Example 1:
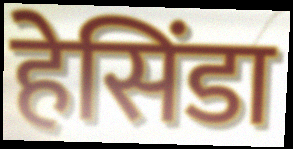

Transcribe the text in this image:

हेसिंडा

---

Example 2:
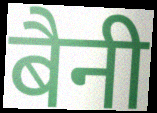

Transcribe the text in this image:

बैनी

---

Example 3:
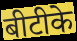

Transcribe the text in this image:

बीटीके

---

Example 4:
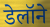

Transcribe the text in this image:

डेलॉने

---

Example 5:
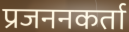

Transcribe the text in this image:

प्रजननकर्ता